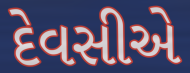
દેવસીએ